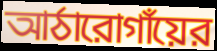
আঠারোগাঁয়ের